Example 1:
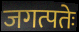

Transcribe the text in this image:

जगत्पतेः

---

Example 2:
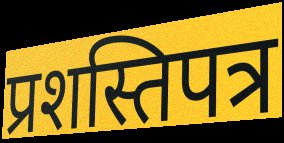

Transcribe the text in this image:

प्रशस्तिपत्र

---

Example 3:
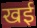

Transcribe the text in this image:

खई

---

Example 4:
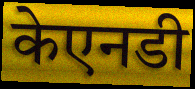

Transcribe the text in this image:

केएनडी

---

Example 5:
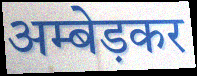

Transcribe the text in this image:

अम्बेड़कर